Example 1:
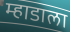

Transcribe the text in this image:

म्हाडाला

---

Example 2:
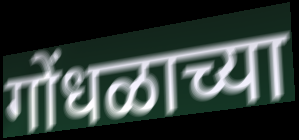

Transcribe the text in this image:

गोंधळाच्या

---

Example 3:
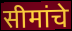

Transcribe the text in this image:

सीमांचे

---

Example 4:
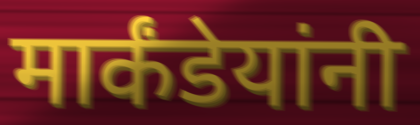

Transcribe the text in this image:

मार्कंडेयांनी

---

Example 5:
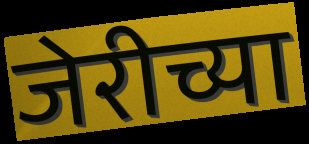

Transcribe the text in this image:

जेरीच्या